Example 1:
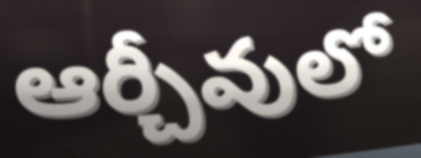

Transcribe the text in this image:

ఆర్చీవులో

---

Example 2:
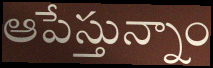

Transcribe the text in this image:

ఆపేస్తున్నాం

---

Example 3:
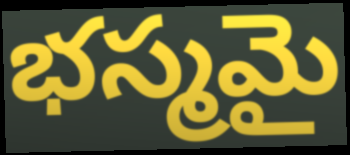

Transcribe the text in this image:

భస్మమై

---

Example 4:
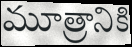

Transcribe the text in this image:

మూత్రానికి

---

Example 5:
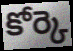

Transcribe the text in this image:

కోర్కె